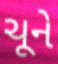
ચૂને